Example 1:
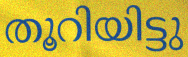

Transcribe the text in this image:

തൂറിയിട്ടു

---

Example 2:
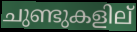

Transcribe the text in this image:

ചുണ്ടുകളില്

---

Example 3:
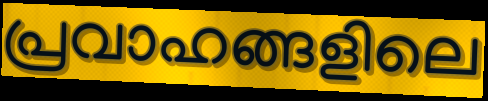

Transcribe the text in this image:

പ്രവാഹങ്ങളിലെ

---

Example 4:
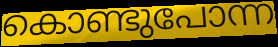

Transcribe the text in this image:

കൊണ്ടുപോന്ന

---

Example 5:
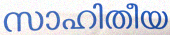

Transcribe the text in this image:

സാഹിതീയ